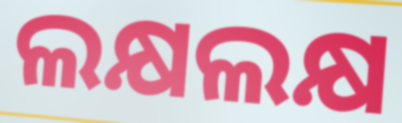
ଲକ୍ଷଲକ୍ଷ